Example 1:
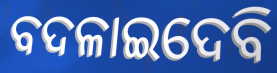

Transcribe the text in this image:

ବଦଳାଇଦେବି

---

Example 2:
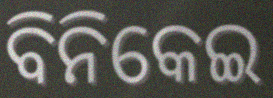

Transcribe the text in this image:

ବିନିକେଇ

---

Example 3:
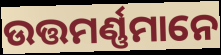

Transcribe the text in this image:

ଉତ୍ତମର୍ଣ୍ଣମାନେ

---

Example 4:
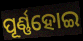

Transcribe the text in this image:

ପୂର୍ଣ୍ଣହୋଇ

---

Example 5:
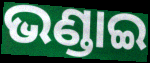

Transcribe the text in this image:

ଭଣ୍ଡାଇ